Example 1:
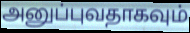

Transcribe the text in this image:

அனுப்புவதாகவும்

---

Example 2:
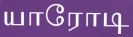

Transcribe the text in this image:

யாரோடி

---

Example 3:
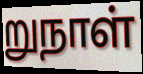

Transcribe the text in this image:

றுநாள்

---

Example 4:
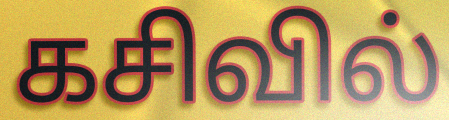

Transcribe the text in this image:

கசிவில்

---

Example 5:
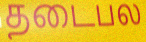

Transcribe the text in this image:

தடைபல